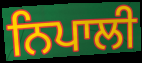
ਨਿਪਾਲੀ